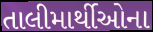
તાલીમાર્થીઓના